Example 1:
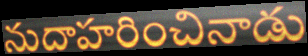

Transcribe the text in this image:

నుదాహరించినాడు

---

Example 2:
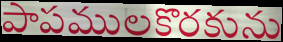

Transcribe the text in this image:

పాపములకొరకును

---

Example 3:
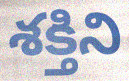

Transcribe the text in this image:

శక్తిని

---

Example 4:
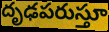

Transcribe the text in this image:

దృఢపరుస్తూ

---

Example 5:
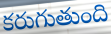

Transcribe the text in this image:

కరుగుతుంది